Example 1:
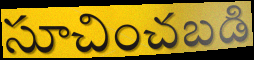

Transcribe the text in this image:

సూచించబడి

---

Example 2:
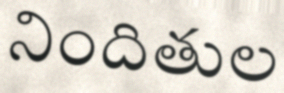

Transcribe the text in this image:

నిందితుల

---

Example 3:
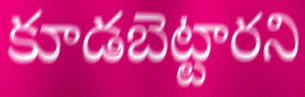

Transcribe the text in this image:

కూడబెట్టారని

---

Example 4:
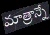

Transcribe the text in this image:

మాత్రాన్నే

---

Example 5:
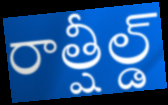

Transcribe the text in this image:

రాత్షీల్డ్